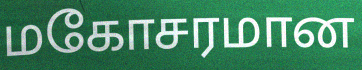
மகோசரமான